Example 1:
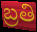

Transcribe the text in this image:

బ్రతి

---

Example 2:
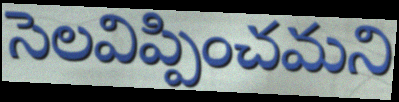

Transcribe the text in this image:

సెలవిప్పించమని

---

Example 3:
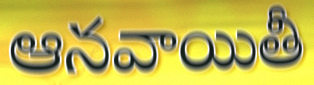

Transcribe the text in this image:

ఆనవాయితీ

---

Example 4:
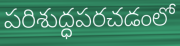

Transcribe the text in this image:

పరిశుద్ధపరచడంలో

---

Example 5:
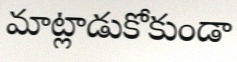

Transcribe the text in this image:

మాట్లాడుకోకుండా